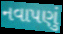
નવાપણું